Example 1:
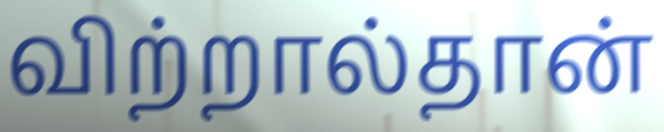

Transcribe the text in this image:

விற்றால்தான்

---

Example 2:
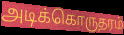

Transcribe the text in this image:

அடிக்கொருதரம்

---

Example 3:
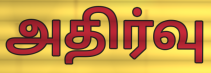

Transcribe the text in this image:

அதிர்வு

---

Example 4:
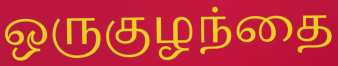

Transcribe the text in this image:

ஒருகுழந்தை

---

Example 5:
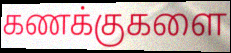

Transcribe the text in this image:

கணக்குகளை